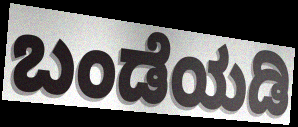
ಬಂಡೆಯಡಿ